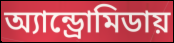
অ্যান্ড্রোমিডায়